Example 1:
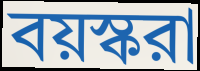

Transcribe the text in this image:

বয়স্করা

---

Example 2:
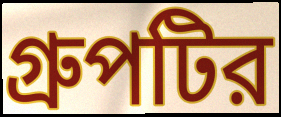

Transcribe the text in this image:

গ্রুপটির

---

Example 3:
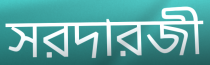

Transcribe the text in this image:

সরদারজী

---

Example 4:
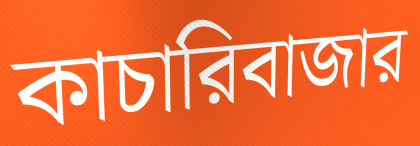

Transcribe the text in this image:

কাচারিবাজার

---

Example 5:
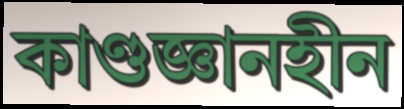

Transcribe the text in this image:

কাণ্ডজ্ঞানহীন